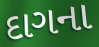
દાગના